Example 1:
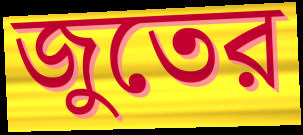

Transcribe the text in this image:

জুতের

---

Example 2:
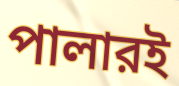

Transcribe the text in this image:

পালারই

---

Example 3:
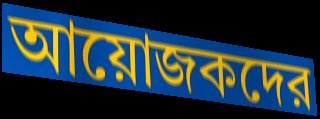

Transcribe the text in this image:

আয়োজকদের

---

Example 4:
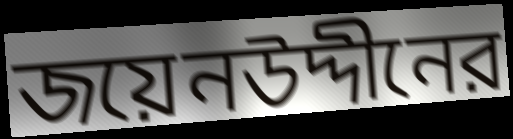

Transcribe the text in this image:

জয়েনউদ্দীনের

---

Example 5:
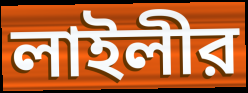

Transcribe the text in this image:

লাইলীর